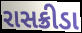
રાસક્રીડા